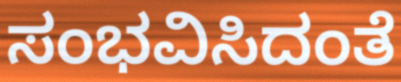
ಸಂಭವಿಸಿದಂತೆ